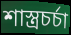
শাস্ত্রচর্চা